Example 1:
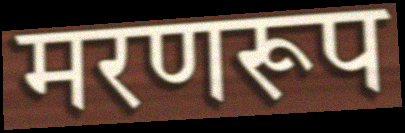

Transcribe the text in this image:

मरणरूप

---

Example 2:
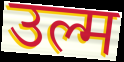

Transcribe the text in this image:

उल्म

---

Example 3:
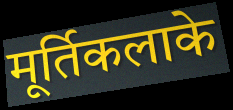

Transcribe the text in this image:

मूर्तिकलाके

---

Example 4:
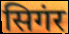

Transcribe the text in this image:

सिगंर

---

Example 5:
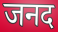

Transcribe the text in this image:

जनद